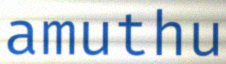
amuthu